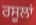
ਰਸੂਲਾਂ